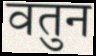
वतुन